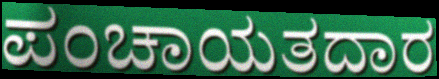
ಪಂಚಾಯತದಾರ